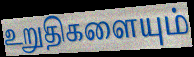
உறுதிகளையும்